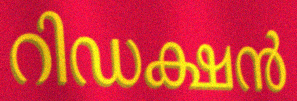
റിഡക്ഷൻ